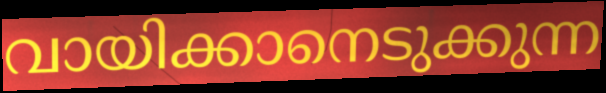
വായിക്കാനെടുക്കുന്ന